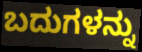
ಬದುಗಳನ್ನು